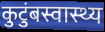
कुटुंबस्वास्थ्य